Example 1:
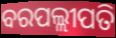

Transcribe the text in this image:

ବରପଲ୍ଲୀପତି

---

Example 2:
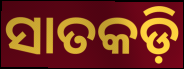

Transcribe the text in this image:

ସାତକଡ଼ି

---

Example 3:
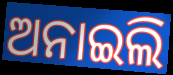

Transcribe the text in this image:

ଅନାଇଲି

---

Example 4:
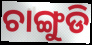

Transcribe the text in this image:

ଚାଙ୍ଗୁଡି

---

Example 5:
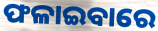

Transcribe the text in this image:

ଫଳାଇବାରେ